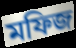
মফিজ